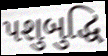
પશુબુદ્ધિ